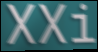
XXi